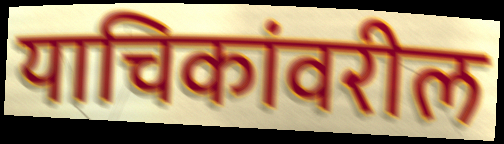
याचिकांवरील